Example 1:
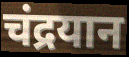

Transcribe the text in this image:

चंद्रयान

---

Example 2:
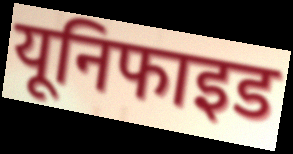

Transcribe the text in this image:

यूनिफाइड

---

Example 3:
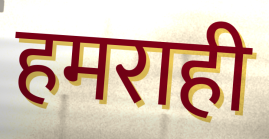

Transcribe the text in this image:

हमराही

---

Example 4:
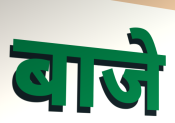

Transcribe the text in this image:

बाजे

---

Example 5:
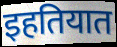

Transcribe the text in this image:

इहतियात